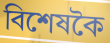
বিশেষকৈ